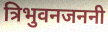
त्रिभुवनजननी